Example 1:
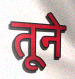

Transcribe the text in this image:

तूने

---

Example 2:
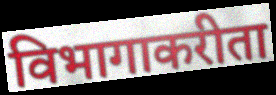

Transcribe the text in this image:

विभागाकरीता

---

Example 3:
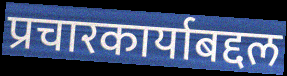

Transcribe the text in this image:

प्रचारकार्याबद्दल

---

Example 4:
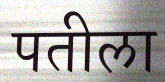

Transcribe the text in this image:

पतीला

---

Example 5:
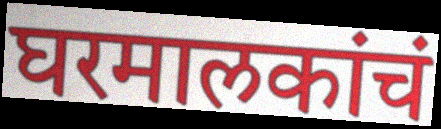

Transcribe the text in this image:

घरमालकांचं